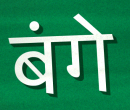
बंगे